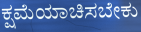
ಕ್ಷಮೆಯಾಚಿಸಬೇಕು